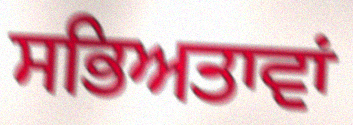
ਸਭਿਅਤਾਵਾਂ